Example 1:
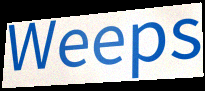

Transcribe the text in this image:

Weeps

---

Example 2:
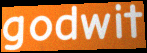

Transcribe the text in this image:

godwit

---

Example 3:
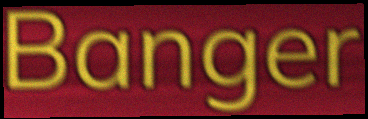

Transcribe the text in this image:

Banger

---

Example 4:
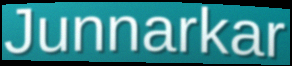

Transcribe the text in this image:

Junnarkar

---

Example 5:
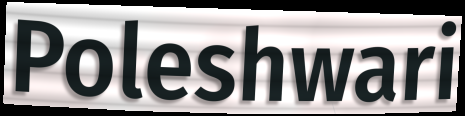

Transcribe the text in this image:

Poleshwari